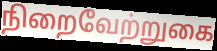
நிறைவேற்றுகை